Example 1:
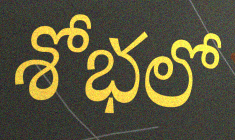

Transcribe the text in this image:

శోభలో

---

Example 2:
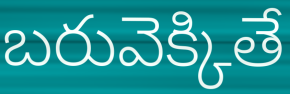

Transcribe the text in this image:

బరువెక్కితే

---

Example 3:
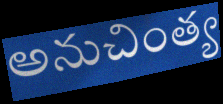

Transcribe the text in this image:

అనుచింత్య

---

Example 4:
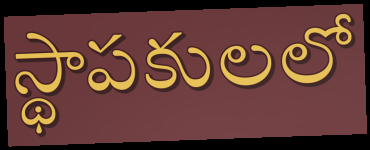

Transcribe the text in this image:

స్థాపకులలో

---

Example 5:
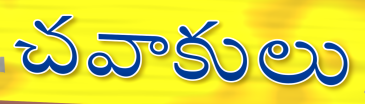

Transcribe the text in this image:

చవాకులు